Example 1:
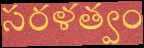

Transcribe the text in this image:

సరళత్వం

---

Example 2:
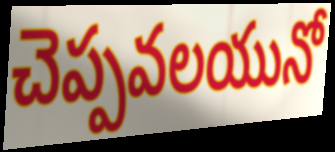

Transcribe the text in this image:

చెప్పవలయునో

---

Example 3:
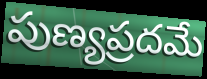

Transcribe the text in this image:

పుణ్యప్రదమే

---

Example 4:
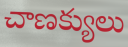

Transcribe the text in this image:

చాణక్యులు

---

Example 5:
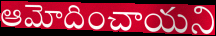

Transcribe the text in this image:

ఆమోదించాయని